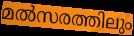
മൽസരത്തിലും